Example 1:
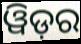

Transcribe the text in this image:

ୱିଡ଼ର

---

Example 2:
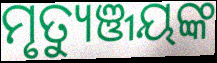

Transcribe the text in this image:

ମୃତ୍ୟୁଞ୍ଜୟଙ୍କ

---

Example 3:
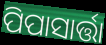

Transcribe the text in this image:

ପିପାସାର୍ତ୍ତା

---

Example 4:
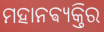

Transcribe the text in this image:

ମହାନଵ୍ୟକ୍ତିର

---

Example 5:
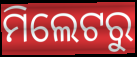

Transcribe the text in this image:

ମିଲେଟରୁ